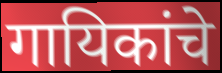
गायिकांचे